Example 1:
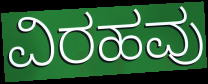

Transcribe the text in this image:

ವಿರಹವು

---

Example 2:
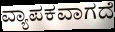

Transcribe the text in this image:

ವ್ಯಾಪಕವಾಗದೆ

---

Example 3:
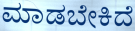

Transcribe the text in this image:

ಮಾಡಬೇಕಿದೆ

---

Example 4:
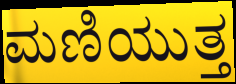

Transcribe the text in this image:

ಮಣಿಯುತ್ತ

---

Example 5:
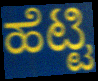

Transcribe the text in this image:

ಹೆಟ್ಟಿ